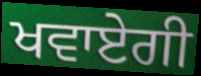
ਖਵਾਏਗੀ